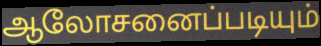
ஆலோசனைப்படியும்